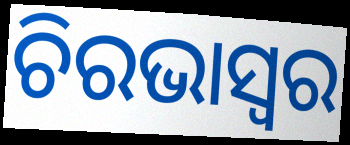
ଚିରଭାସ୍ଵର